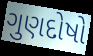
ગુણદોષો